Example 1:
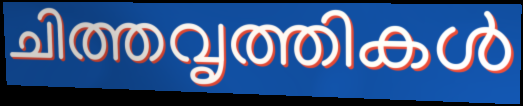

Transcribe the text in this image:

ചിത്തവൃത്തികൾ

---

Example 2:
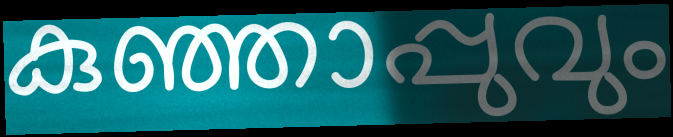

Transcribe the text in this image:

കുഞ്ഞാപ്പുവും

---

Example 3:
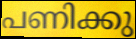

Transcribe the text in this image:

പണിക്കു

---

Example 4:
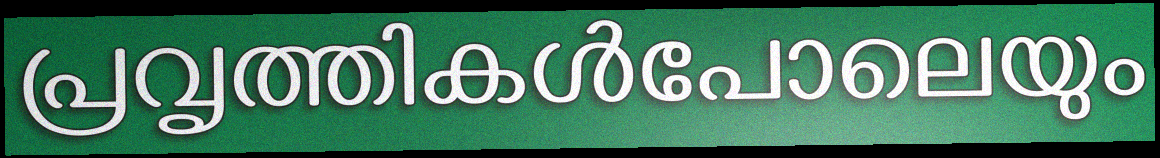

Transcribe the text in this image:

പ്രവൃത്തികൾപോലെയും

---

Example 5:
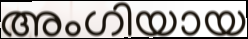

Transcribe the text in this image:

അംഗിയായ